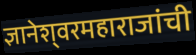
ज्ञानेश्वरमहाराजांची